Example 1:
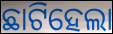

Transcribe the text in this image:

ଛାଟିହେଲା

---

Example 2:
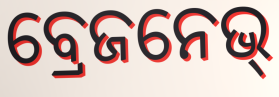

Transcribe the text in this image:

ବ୍ରେଜନେଭ୍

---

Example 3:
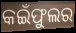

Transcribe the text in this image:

କଇଁଫୁଲର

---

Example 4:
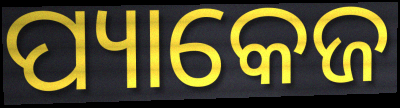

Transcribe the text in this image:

ପ୍ୟାକେଜ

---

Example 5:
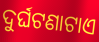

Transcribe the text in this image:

ଦୁର୍ଘଟଣାଟାଏ